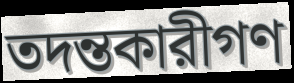
তদন্তকারীগণ